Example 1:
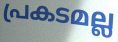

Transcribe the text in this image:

പ്രകടമല്ല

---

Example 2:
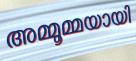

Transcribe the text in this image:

അമ്മൂമ്മയായി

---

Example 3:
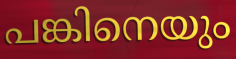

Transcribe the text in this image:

പങ്കിനെയും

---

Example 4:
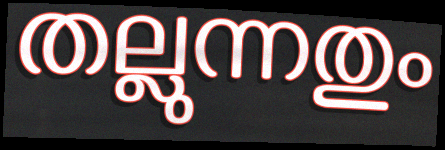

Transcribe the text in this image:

തല്ലുന്നതും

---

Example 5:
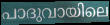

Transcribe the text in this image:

പാദുവായിലെ